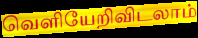
வெளியேறிவிடலாம்